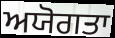
ਅਯੋਗਤਾ